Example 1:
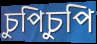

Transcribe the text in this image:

চুপিচুপি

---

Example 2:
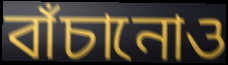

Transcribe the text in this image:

বাঁচানোও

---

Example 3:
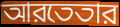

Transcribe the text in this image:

আরতেতার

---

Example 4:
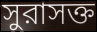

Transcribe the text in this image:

সুরাসক্ত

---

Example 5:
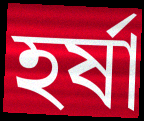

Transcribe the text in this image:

হর্ষা